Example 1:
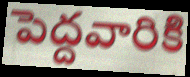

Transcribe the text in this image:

పెద్దవారికి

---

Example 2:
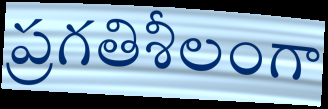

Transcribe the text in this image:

ప్రగతిశీలంగా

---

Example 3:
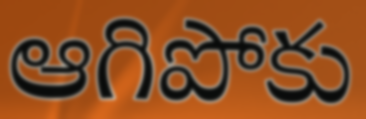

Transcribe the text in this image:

ఆగిపోకు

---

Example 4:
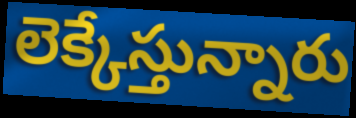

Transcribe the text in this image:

లెక్కేస్తున్నారు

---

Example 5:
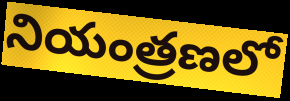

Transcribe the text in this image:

నియంత్రణలో